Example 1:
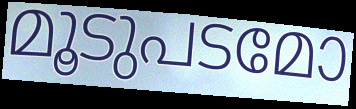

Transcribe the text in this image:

മൂടുപടമോ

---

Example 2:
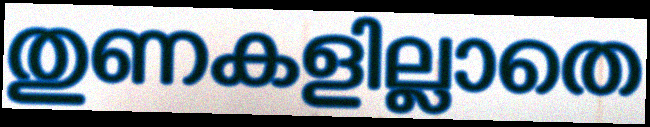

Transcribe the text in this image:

തുണകളില്ലാതെ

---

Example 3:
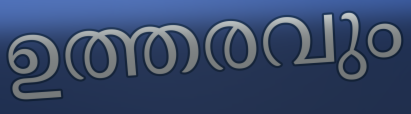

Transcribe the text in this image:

ഉത്തരവും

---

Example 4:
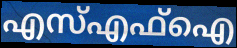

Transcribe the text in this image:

എസ്എഫ്ഐ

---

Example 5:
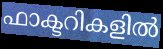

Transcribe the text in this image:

ഫാക്ടറികളിൽ